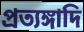
প্রত্যঙ্গাদি